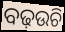
ବଢ଼ଉଚି